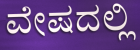
ವೇಷದಲ್ಲಿ